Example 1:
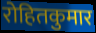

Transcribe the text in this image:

रोहितकुमार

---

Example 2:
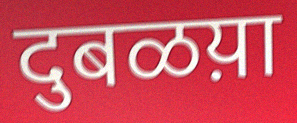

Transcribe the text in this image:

दुबळय़ा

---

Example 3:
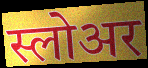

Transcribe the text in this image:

स्लोअर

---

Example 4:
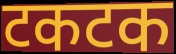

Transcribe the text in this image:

टकटक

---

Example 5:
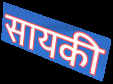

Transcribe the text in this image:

सायकी